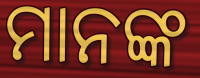
ମାନଙ୍କ